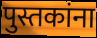
पुस्तकांना